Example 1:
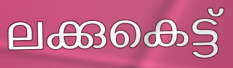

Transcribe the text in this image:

ലക്കുകെട്ട്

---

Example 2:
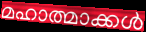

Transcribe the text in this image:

മഹാത്മാക്കൾ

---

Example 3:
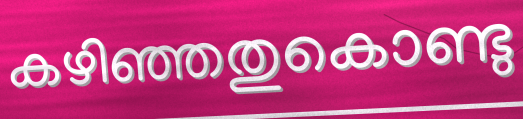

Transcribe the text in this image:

കഴിഞ്ഞതുകൊണ്ടു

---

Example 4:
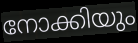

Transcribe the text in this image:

നോക്കിയും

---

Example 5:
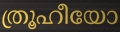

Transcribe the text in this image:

ത്രൂഹീയോ